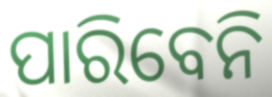
ପାରିବେନି